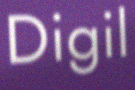
Digil